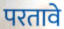
परतावे